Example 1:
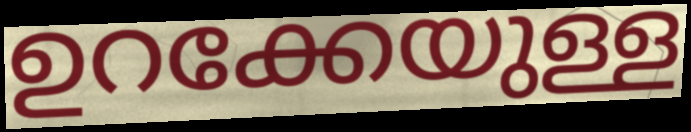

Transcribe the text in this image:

ഉറക്കേയുള്ള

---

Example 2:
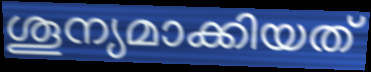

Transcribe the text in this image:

ശൂന്യമാക്കിയത്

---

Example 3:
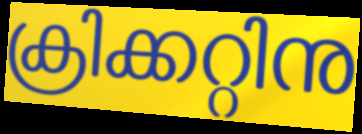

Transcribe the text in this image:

ക്രിക്കറ്റിനു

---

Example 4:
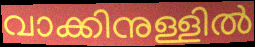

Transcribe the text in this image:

വാക്കിനുള്ളിൽ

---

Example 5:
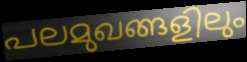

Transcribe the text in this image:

പലമുഖങ്ങളിലും